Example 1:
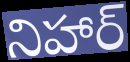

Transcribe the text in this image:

నిహార్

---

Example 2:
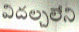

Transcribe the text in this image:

విదల్చలేని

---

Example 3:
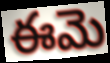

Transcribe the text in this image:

ఈమె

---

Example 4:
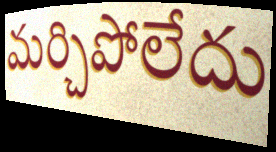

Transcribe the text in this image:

మర్చిపోలేదు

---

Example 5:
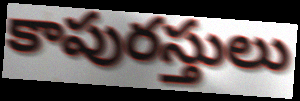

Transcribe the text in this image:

కాపురస్తులు